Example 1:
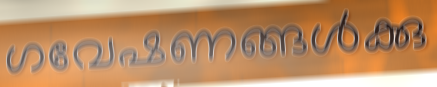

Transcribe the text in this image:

ഗവേഷണങ്ങൾക്കു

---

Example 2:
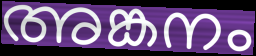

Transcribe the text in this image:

അങ്കനം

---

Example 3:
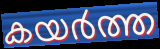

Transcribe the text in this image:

കയർത്ത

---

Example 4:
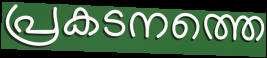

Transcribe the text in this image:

പ്രകടനത്തെ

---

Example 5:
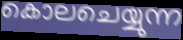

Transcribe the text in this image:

കൊലചെയ്യുന്ന